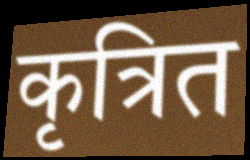
कृत्रित